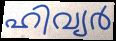
ഹിവ്യർ